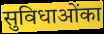
सुविधाओंका